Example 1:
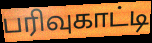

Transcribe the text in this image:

பரிவுகாட்டி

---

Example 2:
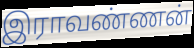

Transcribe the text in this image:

இராவண்ணன்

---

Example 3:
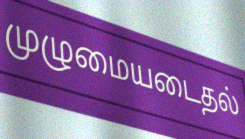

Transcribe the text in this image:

முழுமையடைதல்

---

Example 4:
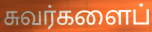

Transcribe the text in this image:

சுவர்களைப்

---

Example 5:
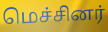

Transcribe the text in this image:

மெச்சினர்